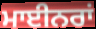
ਮਾਈਨਰਾਂ